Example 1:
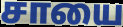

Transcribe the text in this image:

சாயை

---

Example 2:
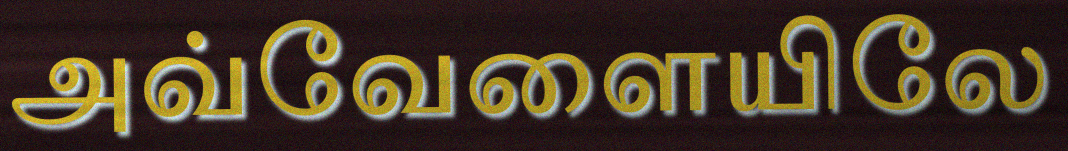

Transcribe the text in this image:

அவ்வேளையிலே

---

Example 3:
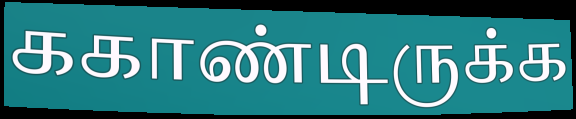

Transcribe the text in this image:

ககாண்டிருக்க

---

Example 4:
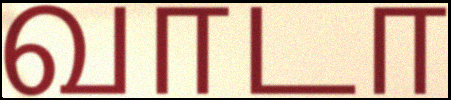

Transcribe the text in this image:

வாடா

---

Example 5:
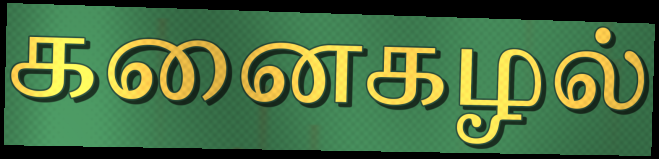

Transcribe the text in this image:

கனைகழல்